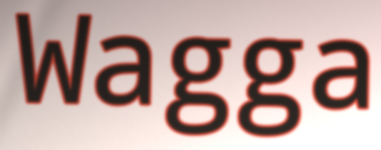
Wagga